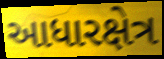
આધારક્ષેત્ર